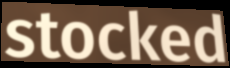
stocked